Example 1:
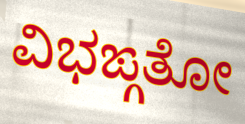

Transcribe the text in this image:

ವಿಭಙ್ಗತೋ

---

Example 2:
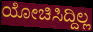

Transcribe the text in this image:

ಯೋಚಿಸಿದ್ದಿಲ್ಲ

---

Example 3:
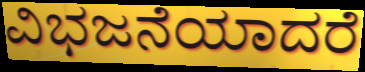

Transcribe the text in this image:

ವಿಭಜನೆಯಾದರೆ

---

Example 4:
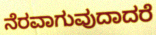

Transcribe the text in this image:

ನೆರವಾಗುವುದಾದರೆ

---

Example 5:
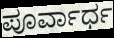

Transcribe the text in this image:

ಪೂರ್ವಾರ್ಧ